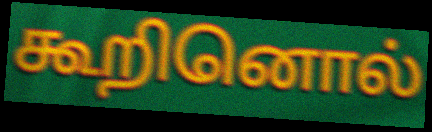
கூறினொல்